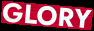
GLORY